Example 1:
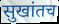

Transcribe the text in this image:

सुखांतच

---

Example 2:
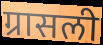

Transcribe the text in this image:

ग्रासली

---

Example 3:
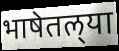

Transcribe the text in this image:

भाषेतल्या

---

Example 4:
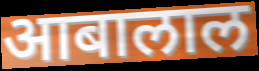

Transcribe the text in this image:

आबालाल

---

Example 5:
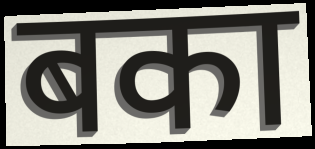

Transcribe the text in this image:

बका